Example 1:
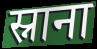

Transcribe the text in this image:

स्नाना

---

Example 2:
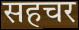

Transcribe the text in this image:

सहचर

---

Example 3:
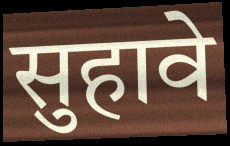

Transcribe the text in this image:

सुहावे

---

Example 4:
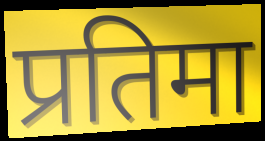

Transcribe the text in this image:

प्रतिमा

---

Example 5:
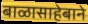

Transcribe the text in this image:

बाळासाहेबाने